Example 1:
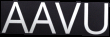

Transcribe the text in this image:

AAVU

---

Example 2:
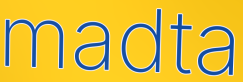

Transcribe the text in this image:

madta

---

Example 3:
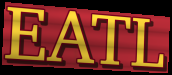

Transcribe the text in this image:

EATL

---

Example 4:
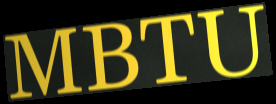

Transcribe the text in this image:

MBTU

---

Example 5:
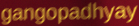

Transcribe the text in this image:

gangopadhyay